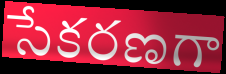
సేకరణగా